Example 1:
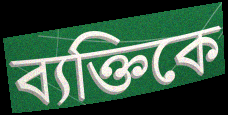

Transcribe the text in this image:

ব্যক্তিকে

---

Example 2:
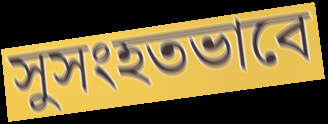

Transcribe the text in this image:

সুসংহতভাবে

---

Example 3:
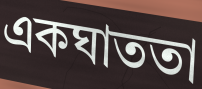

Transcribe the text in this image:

একঘাততা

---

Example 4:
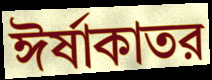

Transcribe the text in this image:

ঈর্ষাকাতর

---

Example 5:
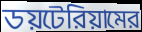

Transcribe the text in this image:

ডয়টেরিয়ামের